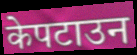
केपटाउन